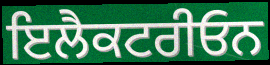
ਇਲੈਕਟਰੀਓਨ